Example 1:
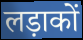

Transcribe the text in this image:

लड़ाकों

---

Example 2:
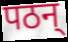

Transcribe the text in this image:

पठन्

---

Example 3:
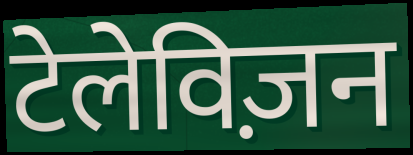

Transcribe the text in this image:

टेलेविज़न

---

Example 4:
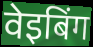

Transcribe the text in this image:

वेइबिंग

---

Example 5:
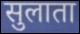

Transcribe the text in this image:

सुलाता